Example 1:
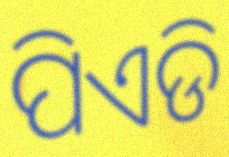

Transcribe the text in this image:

ପିଏଡି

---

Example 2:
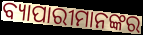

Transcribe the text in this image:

ବ୍ୟାପାରୀମାନଙ୍କର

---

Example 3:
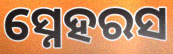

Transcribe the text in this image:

ସ୍ନେହରସ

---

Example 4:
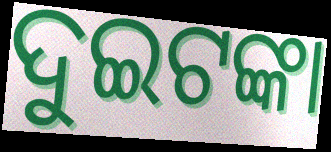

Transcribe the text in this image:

ଦୁଇଟଙ୍କା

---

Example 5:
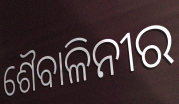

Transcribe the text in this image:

ଶୈବାଳିନୀର